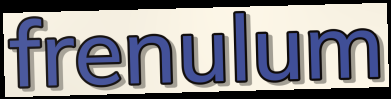
frenulum